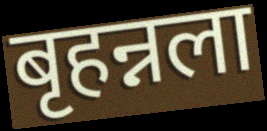
बृहन्नला